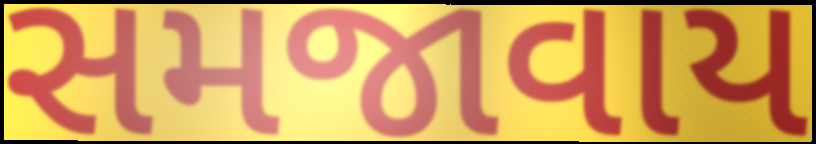
સમજાવાય